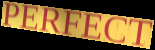
PERFECT